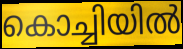
കൊച്ചിയിൽ